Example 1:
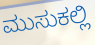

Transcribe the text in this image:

ಮುಸುಕಲ್ಲಿ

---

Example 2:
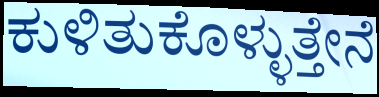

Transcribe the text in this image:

ಕುಳಿತುಕೊಳ್ಳುತ್ತೇನೆ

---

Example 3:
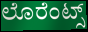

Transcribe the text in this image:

ಲೊರೆಂಟ್ಸ್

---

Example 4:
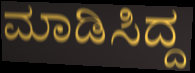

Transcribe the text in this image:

ಮಾಡಿಸಿದ್ದ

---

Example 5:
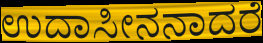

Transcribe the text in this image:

ಉದಾಸೀನನಾದರೆ